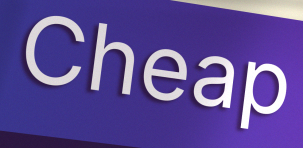
Cheap